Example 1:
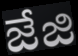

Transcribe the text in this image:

జేజి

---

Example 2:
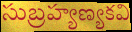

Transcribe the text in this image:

సుబ్రహ్యణ్యకవి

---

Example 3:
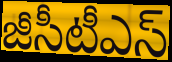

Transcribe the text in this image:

జీసీటీఎస్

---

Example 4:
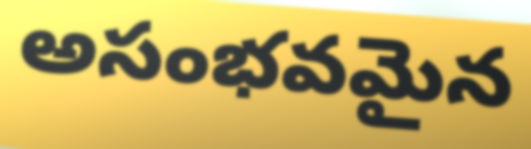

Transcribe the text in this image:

అసంభవమైన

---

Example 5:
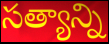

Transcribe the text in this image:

సత్యాన్ని